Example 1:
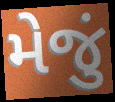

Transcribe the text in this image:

મેજું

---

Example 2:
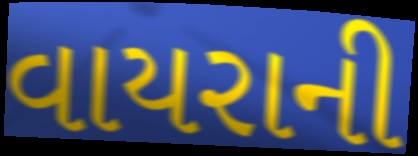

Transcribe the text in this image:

વાયરાની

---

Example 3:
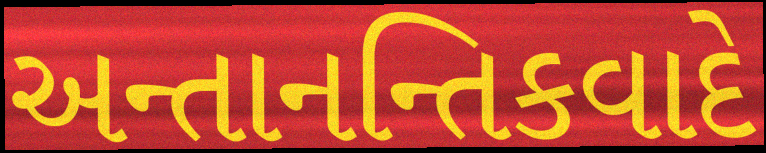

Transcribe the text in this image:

અન્તાનન્તિકવાદે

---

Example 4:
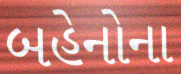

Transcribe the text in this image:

બહેનોના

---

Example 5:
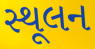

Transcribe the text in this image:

સ્થૂલન